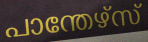
പാന്തേഴ്സ്